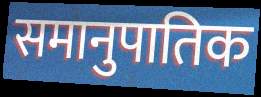
समानुपातिक